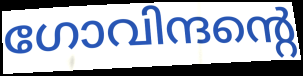
ഗോവിന്ദന്റെ